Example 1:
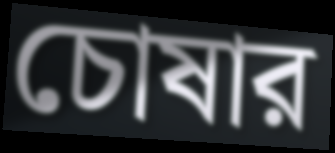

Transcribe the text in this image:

চোষার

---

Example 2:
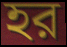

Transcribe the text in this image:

হর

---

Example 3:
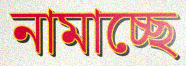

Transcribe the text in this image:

নামাচ্ছে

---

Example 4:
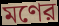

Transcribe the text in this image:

মণের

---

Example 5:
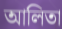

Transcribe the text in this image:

আলিতা